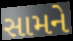
સામને